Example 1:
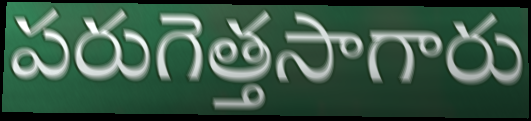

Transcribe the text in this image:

పరుగెత్తసాగారు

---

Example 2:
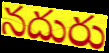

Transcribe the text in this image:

నదురు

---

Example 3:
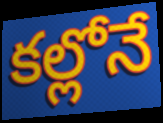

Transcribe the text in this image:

కల్లోనే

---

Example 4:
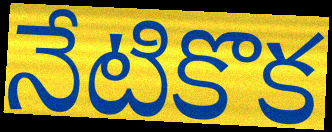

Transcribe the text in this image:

నేటికొక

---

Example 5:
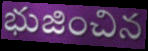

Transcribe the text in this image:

భుజించిన